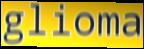
glioma